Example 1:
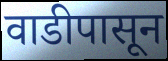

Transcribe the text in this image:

वाडीपासून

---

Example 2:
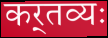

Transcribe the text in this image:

कर्तव्यः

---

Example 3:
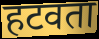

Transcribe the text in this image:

हटवता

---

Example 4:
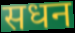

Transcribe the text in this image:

सधन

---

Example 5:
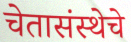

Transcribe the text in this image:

चेतासंस्थेचे